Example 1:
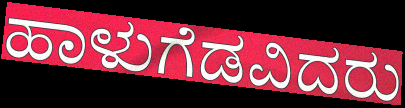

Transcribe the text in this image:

ಹಾಳುಗೆಡವಿದರು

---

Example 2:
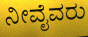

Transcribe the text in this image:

ನೀವೈವರು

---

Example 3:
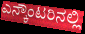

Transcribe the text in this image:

ಎನ್ಕೌಂಟರಿನಲ್ಲಿ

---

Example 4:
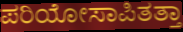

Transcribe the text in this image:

ಪರಿಯೋಸಾಪಿತತ್ತಾ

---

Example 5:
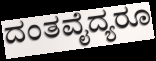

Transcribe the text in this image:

ದಂತವೈದ್ಯರೂ